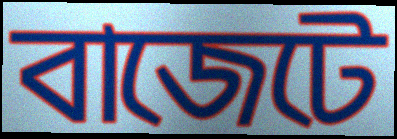
বাজেটে